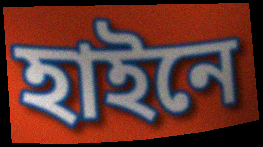
হাইনে